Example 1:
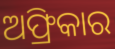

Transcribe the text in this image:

ଅଫ୍ରିକାର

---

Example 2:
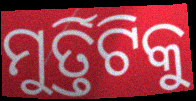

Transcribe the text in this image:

ମୁର୍ତ୍ତିଟିକୁ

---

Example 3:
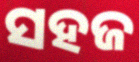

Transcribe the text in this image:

ସହଜ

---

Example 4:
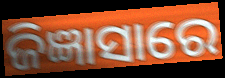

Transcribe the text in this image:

ଜିଜ୍ଞାସାରେ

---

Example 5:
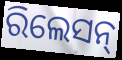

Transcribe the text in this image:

ରିଲେସନ୍